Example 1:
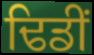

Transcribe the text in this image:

ਢਿਡੀਂ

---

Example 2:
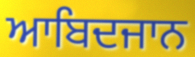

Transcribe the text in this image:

ਆਬਿਦਜਾਨ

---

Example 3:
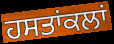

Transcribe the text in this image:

ਹਸਤਾਂਕਲਾਂ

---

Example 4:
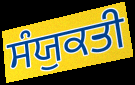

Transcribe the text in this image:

ਸੰਯੁਕਤੀ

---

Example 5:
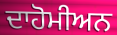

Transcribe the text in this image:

ਦਾਹੋਮੀਅਨ